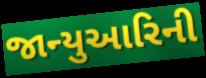
જાન્યુઆરિની